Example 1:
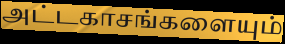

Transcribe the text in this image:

அட்டகாசங்களையும்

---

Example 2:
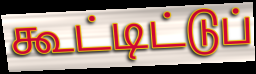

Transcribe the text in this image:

கூட்டிட்டுப்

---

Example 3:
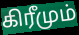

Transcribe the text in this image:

கிரீமும்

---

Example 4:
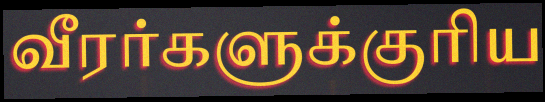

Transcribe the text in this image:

வீரர்களுக்குரிய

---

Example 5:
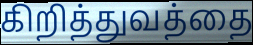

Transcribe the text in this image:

கிறித்துவத்தை